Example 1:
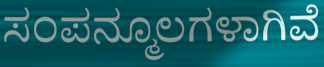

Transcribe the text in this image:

ಸಂಪನ್ಮೂಲಗಳಾಗಿವೆ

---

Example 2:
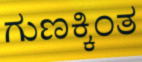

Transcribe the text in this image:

ಗುಣಕ್ಕಿಂತ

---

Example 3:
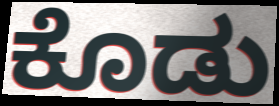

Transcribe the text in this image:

ಕೊಡು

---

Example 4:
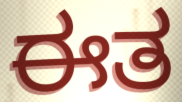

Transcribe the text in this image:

ಈತ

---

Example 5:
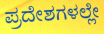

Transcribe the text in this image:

ಪ್ರದೇಶಗಳಲ್ಲೇ